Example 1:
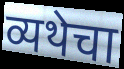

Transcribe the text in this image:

व्यथेचा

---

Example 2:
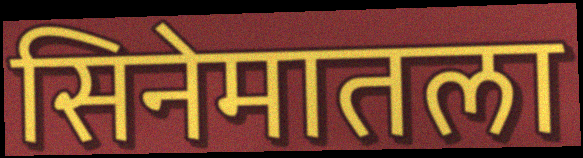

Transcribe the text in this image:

सिनेमातला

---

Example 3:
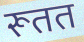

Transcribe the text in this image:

रूतत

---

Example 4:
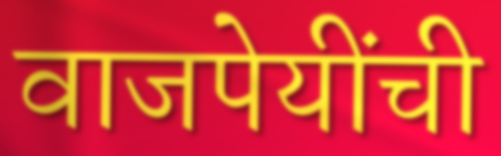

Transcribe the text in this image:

वाजपेयींची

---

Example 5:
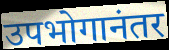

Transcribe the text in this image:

उपभोगानंतर